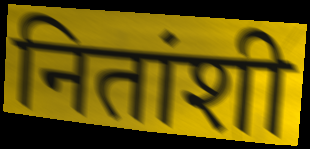
नितांशी